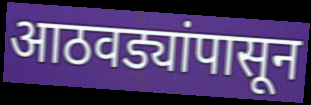
आठवड्यांपासून